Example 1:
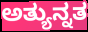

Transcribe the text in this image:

ಅತ್ಯುನ್ನತ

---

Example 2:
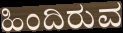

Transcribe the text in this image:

ಹಿಂದಿರುವ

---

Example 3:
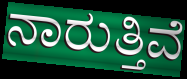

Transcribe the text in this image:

ನಾರುತ್ತಿವೆ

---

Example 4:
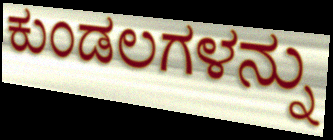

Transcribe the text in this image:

ಕುಂಡಲಗಳನ್ನು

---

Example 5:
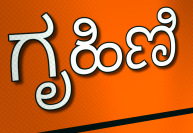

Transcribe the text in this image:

ಗೃಹಿಣಿ